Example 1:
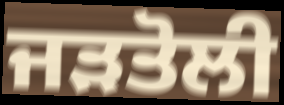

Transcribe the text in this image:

ਜੜਤੋਲੀ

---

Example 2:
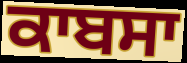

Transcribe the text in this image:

ਕਾਬਸਾ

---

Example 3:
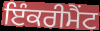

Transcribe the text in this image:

ਇੰਕਰੀਮੈਂਟ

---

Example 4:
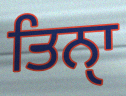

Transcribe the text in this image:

ਤਿਨੑਾ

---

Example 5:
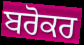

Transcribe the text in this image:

ਬਰੋਕਰ